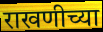
राखणीच्या